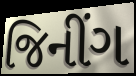
જિનીંગ